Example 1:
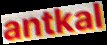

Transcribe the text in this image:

antkal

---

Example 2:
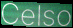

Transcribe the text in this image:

Celso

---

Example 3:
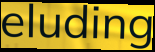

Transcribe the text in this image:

eluding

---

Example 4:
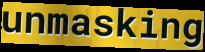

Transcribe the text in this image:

unmasking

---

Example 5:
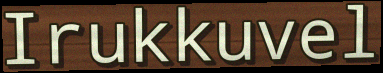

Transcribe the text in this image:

Irukkuvel